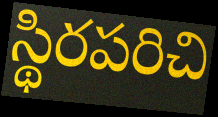
స్థిరపరిచి